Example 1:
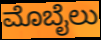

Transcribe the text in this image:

ಮೊಬೈಲು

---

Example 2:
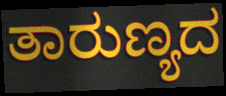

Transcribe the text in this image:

ತಾರುಣ್ಯದ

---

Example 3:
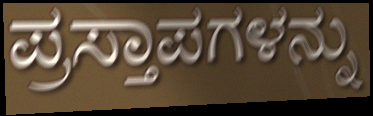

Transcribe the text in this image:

ಪ್ರಸ್ತಾಪಗಳನ್ನು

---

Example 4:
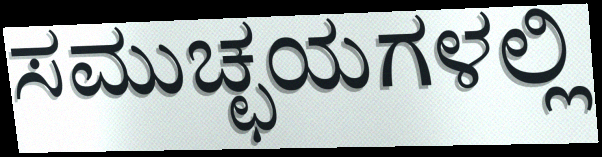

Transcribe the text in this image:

ಸಮುಚ್ಛಯಗಳಲ್ಲಿ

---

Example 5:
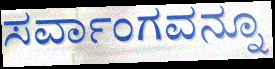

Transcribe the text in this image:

ಸರ್ವಾಂಗವನ್ನೂ